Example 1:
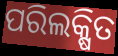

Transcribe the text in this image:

ପରିଲକ୍ଷିତ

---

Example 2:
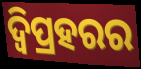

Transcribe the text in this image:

ଦ୍ବିପ୍ରହରର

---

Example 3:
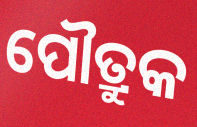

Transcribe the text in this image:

ପୌତ୍ରୁକ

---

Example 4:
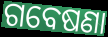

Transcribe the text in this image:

ଗବେଷଣା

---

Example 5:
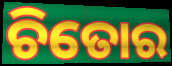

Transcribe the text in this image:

ଚିତୋର